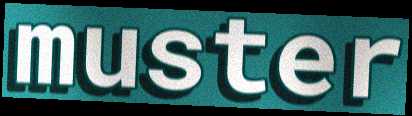
muster